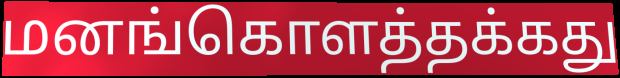
மனங்கொளத்தக்கது